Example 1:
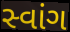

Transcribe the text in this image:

સ્વાંગ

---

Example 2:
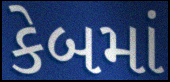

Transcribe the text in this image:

કેબમાં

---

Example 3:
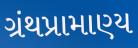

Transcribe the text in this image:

ગ્રંથપ્રામાણ્ય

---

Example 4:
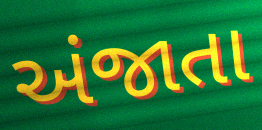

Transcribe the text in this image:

અંજાતા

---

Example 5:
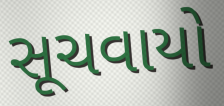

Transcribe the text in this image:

સૂચવાયો